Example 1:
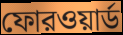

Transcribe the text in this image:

ফোরওয়ার্ড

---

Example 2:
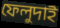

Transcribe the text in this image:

ফেলুদাই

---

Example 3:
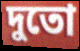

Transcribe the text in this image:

দুতো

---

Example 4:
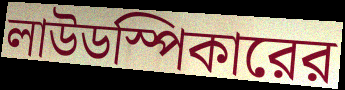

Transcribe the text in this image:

লাউডস্পিকারের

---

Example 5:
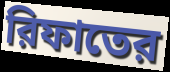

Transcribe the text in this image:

রিফাতের